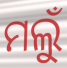
ମଲୁଁ